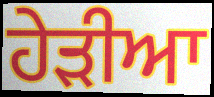
ਹੇੜੀਆ